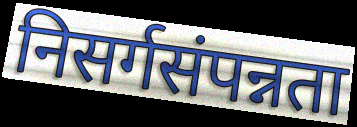
निसर्गसंपन्नता